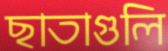
ছাতাগুলি